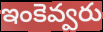
ఇంకెవ్వరు